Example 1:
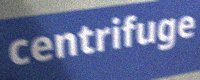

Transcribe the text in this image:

centrifuge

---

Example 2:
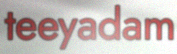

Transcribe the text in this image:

teeyadam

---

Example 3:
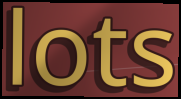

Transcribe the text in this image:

lots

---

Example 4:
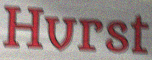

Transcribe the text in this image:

Hurst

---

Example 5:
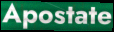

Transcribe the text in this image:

Apostate